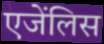
एजेंलिस